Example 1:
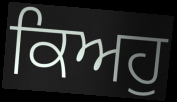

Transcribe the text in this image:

ਕਿਅਹੁ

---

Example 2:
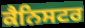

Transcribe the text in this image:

ਕੈਨਿਸਟਰ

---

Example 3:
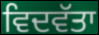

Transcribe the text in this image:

ਵਿਦਵੱਤਾ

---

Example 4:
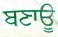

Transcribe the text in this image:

ਬਣਾਊ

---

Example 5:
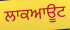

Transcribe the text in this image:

ਲਾਕਆਊਟ